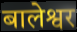
बालेश्वर